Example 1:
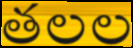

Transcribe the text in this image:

తలల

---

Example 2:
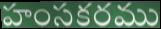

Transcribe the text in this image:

హంసకరము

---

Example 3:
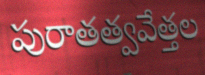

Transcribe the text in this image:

పురాతత్వవేత్తల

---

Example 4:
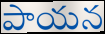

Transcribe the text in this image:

పాయన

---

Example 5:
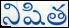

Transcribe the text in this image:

నిషిత